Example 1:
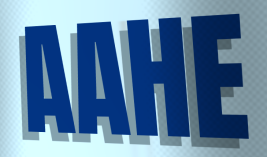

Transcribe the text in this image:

AAHE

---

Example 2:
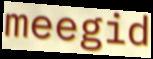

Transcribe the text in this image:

meegid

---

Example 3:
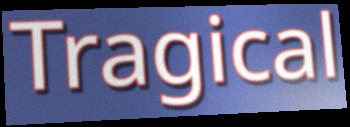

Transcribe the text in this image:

Tragical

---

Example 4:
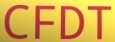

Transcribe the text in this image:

CFDT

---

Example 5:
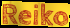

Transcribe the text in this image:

Reiko